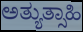
ಅತ್ಯುತ್ಸಾಹಿ